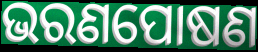
ଭରଣପୋଷଣ